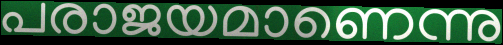
പരാജയമാണെന്നു